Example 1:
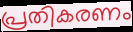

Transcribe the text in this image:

പ്രതികരണം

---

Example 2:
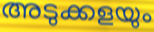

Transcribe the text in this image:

അടുക്കളയും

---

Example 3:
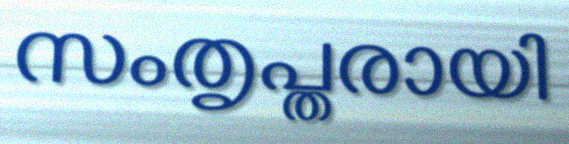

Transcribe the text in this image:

സംതൃപ്തരായി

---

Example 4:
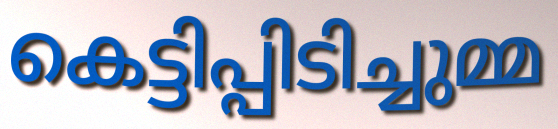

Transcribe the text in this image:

കെട്ടിപ്പിടിച്ചുമ്മ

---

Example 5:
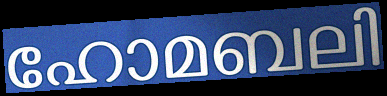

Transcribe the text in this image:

ഹോമബലി